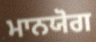
ਮਾਨਯੋਗ